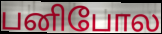
பனிபோல